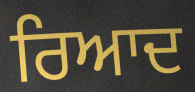
ਰਿਆਦ